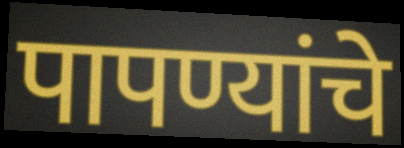
पापण्यांचे